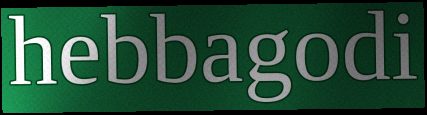
hebbagodi